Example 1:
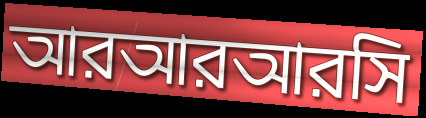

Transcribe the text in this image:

আরআরআরসি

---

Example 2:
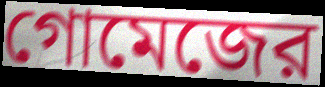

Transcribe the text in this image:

গোমেজের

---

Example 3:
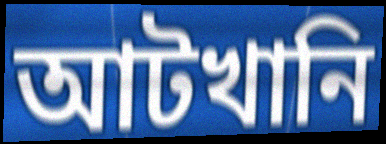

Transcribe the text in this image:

আটখানি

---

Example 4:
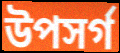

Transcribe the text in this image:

উপসর্গ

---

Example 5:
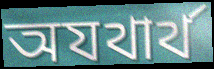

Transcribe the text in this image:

অযথার্থ